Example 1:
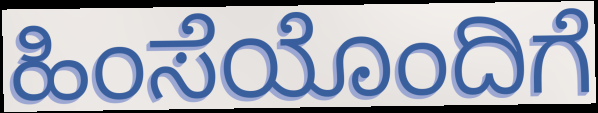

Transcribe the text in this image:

ಹಿಂಸೆಯೊಂದಿಗೆ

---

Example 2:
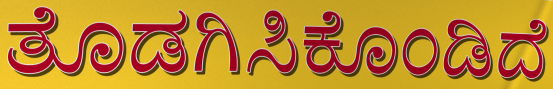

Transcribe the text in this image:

ತೊಡಗಿಸಿಕೊಂಡಿದೆ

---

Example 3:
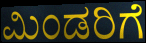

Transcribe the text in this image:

ಮಿಂಡರಿಗೆ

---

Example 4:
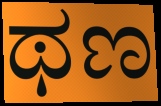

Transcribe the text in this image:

ಥಣ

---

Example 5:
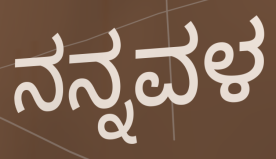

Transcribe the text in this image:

ನನ್ನವಳ